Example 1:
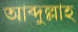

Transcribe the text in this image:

আব্দুল্লাহ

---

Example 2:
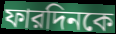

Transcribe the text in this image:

ফারদিনকে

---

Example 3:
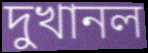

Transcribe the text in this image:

দুখানল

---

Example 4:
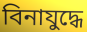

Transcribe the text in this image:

বিনাযুদ্ধে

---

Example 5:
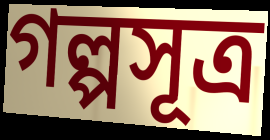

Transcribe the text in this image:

গল্পসূত্র